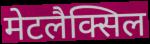
मेटलैक्सिल